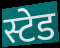
स्टेड